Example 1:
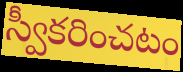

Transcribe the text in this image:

స్వీకరించటం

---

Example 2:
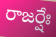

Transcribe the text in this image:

రాజర్షేః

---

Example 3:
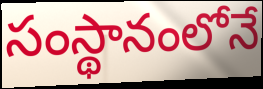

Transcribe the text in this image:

సంస్థానంలోనే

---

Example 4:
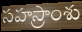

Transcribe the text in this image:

సహస్రాంశు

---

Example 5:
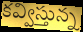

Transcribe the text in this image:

కవ్విస్తున్న